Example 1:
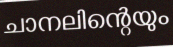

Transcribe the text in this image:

ചാനലിന്റെയും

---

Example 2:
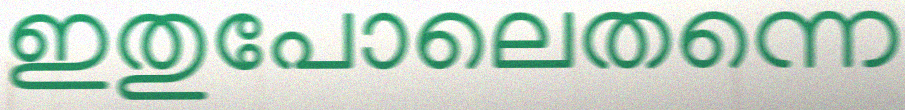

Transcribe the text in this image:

ഇതുപോലെതന്നെ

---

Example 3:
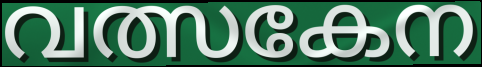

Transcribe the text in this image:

വത്സകേന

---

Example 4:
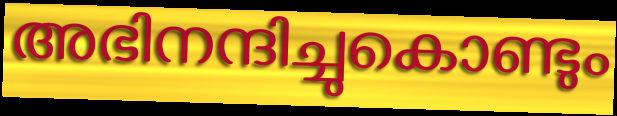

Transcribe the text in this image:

അഭിനന്ദിച്ചുകൊണ്ടും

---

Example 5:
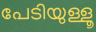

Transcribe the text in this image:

പേടിയുള്ളൂ